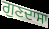
ਗੁਣਦਾਸਾ